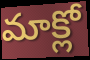
మాక్లో